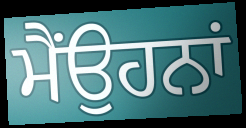
ਮੈਂਉਹਨਾਂ